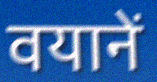
वयानें